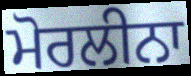
ਮੋਰਲੀਨਾ